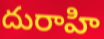
దురాహి